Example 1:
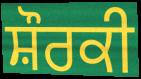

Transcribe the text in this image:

ਸ਼ੌਰਕੀ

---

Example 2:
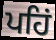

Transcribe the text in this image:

ਪਹਿਂ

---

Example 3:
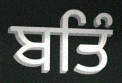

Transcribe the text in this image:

ਬਤਿੰ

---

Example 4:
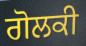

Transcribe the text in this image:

ਗੋਲਕੀ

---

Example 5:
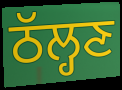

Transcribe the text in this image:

ਠੱਲ੍ਹਣ